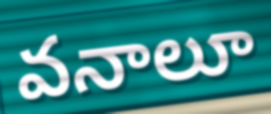
వనాలూ